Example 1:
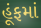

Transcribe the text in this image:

હૂંફમાં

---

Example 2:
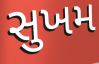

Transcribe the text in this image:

સુખમ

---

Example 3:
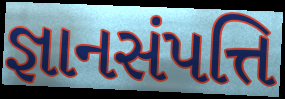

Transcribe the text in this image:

જ્ઞાનસંપત્તિ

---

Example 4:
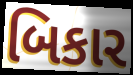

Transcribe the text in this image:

બિકાર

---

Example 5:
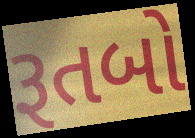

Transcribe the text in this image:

રૂતબો